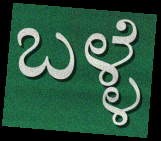
ಬಳ್ಳೆ